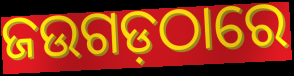
ଜଉଗଡ଼ଠାରେ